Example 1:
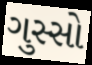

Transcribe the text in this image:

ગુસ્સો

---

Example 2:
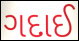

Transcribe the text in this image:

ગદાઈ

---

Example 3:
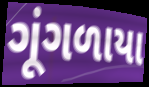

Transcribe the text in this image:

ગૂંગળાયા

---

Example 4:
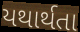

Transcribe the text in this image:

યથાર્થતા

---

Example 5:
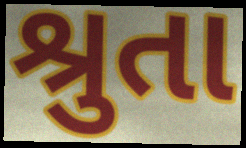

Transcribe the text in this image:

શ્રુતા